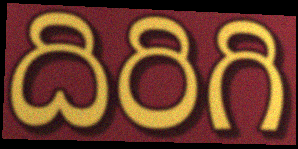
దిరిగి